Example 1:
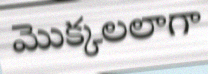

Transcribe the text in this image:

మొక్కలలాగా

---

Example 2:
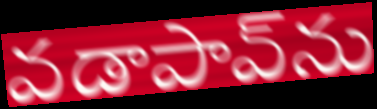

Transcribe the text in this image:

వడాపావ్‌ను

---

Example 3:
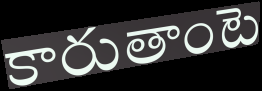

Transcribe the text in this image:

కారుతాంటె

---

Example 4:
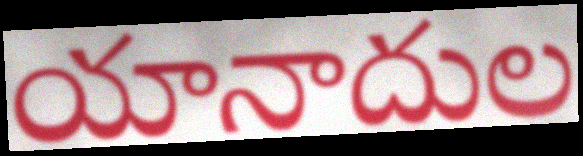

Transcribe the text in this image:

యానాదుల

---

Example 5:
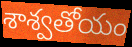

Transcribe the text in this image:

శాశ్వతోయం